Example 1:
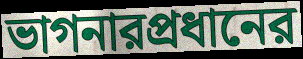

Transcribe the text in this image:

ভাগনারপ্রধানের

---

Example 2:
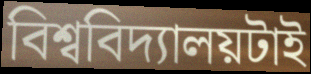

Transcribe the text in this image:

বিশ্ববিদ্যালয়টাই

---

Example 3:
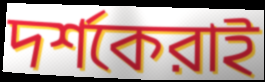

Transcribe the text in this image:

দর্শকেরাই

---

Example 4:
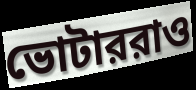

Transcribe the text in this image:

ভোটাররাও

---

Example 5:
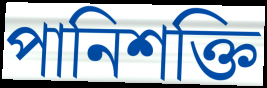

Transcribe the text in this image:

পানিশক্তি